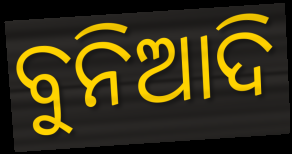
ବୁନିଆଦି